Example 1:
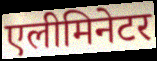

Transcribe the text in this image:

एलीमिनेटर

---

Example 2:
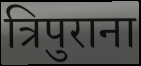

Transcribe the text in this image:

त्रिपुराना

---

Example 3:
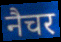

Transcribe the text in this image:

नैचर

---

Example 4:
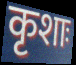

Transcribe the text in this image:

कृशाः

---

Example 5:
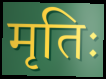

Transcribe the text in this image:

मृतिः